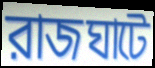
রাজঘাটে